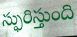
స్ఫురిస్తుంది